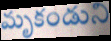
మృకండుని